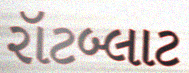
રૉટબ્લાટ